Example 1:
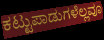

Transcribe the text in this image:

ಕಟ್ಟುಪಾಡುಗಳೆಲ್ಲವೂ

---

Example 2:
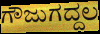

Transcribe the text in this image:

ಗೌಜುಗದ್ದಲ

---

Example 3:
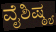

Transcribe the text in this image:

ವೈಶಿಷ್ಠ್ಯ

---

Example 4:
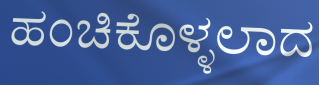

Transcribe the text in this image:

ಹಂಚಿಕೊಳ್ಳಲಾದ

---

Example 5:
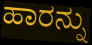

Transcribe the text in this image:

ಹಾರನ್ನು